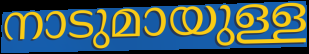
നാടുമായുള്ള